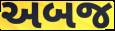
અબજ